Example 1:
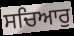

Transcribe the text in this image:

ਸਚਿਆਰੁ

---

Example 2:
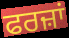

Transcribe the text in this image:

ਫਰਜ਼ਾਂ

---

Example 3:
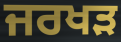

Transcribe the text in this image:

ਜਰਖੜ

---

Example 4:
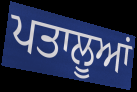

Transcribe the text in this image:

ਪਤਾਲੂਆਂ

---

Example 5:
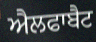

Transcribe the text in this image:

ਐਲਫਾਬੈਟ